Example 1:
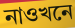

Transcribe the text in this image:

নাওখনে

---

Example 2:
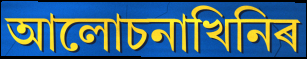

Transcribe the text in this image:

আলোচনাখিনিৰ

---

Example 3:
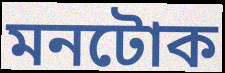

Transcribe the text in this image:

মনটোক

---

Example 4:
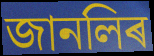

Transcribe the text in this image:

জানলিৰ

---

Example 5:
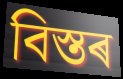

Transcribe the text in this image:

বিস্তৰ